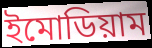
ইমোডিয়াম